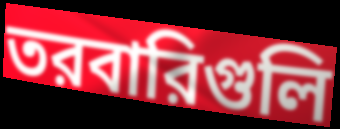
তরবারিগুলি